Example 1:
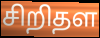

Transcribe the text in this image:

சிறிதள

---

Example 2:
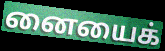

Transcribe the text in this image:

னையைக்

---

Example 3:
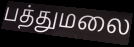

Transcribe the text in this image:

பத்துமலை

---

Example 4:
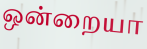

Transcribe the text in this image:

ஒன்றையா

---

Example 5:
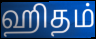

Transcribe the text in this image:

ஹிதம்